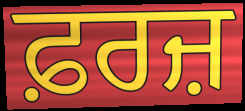
ਫ਼ਰਜ਼